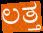
ಲತ್ತ